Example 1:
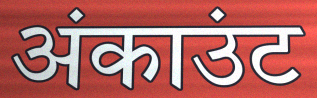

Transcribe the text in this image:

अंकाउंट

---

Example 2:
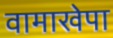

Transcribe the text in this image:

वामाखेपा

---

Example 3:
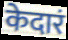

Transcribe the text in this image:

केदारं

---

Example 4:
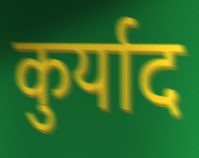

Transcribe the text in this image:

कुर्याद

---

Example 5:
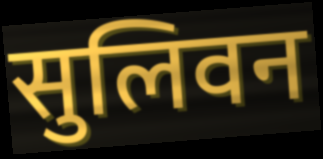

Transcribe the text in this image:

सुलिवन